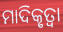
ମାଦିକୃତ୍ୱା